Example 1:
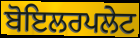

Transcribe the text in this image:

ਬੋਇਲਰਪਲੇਟ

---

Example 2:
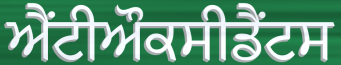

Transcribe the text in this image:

ਐਂਟੀਔਕਸੀਡੈਂਟਸ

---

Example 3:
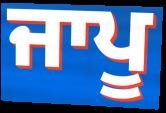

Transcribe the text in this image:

ਜਾਪੂ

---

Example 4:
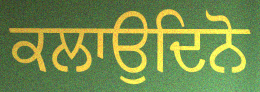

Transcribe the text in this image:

ਕਲਾਉਦਿਨੋ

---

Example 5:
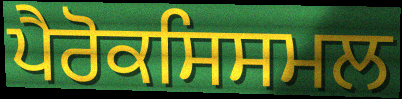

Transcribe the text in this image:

ਪੈਰੋਕਸਿਸਮਲ